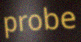
probe